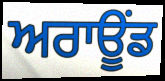
ਅਰਾਊਂਡ